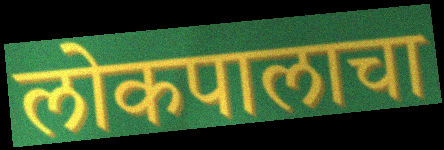
लोकपालाचा